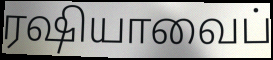
ரஷியாவைப்